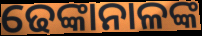
ଢେଙ୍କାନାଳଙ୍କ